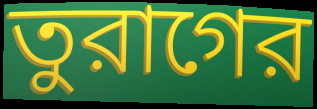
তুরাগের